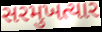
સરમુખત્યાર